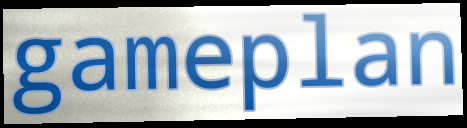
gameplan